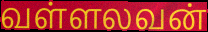
வள்ளலவன்